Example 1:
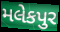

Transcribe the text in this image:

મલેકપુર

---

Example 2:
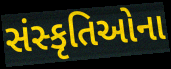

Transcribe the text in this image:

સંસ્કૃતિઓના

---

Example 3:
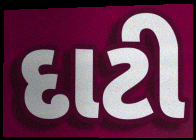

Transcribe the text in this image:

દાટી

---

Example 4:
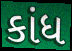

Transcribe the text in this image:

કાંધ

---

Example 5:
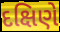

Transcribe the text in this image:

દક્ષિણે